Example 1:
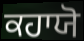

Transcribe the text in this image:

ਕਹਾਯੋ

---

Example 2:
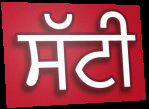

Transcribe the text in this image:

ਸੱਟੀ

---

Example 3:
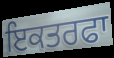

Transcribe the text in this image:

ਇਕਤਰਫਾ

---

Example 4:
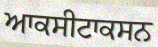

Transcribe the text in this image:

ਆਕਸੀਟਾਕਸਨ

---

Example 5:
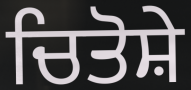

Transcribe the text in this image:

ਚਿਤੋਸ਼ੇ